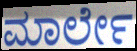
ಮಾರ್ಲೇ